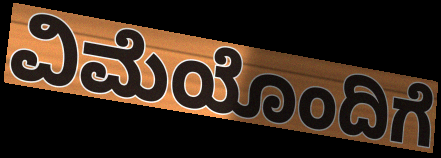
ವಿಮೆಯೊಂದಿಗೆ